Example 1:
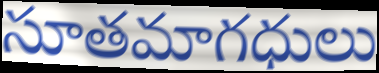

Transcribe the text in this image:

సూతమాగధులు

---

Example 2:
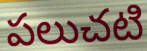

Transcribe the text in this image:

పలుచటి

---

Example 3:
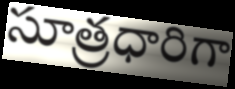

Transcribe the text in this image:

సూత్రధారిగా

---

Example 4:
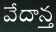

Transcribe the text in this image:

వేదాన్త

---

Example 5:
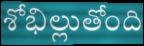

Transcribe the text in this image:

శోభిల్లుతోంది